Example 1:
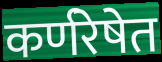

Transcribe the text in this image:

कर्णरेषेत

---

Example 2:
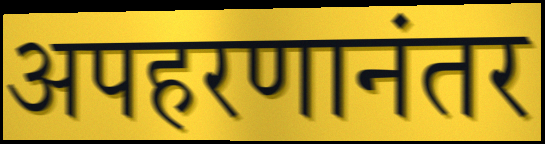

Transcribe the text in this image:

अपहरणानंतर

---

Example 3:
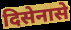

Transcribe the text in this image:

दिसेनासे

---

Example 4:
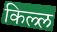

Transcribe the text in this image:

किल्ल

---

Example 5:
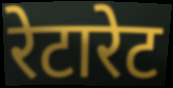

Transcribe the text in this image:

रेटारेट